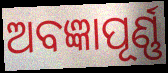
ଅବଜ୍ଞାପୂର୍ଣ୍ଣ